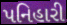
પનિહારી